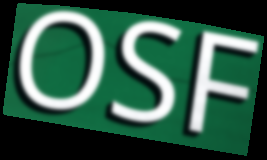
OSF